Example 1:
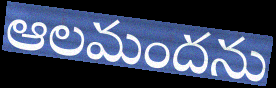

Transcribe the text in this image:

ఆలమందను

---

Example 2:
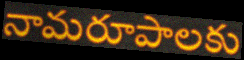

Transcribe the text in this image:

నామరూపాలకు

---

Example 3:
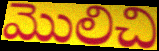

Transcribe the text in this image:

మొలిచి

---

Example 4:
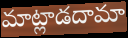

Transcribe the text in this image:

మాట్లాడదామా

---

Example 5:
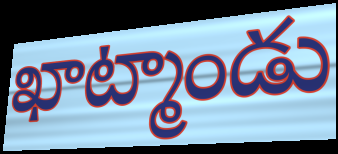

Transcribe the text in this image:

ఖాట్మాండు